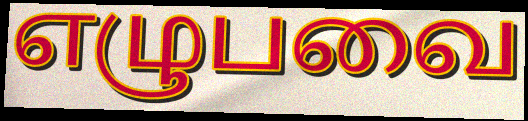
எழுபவை